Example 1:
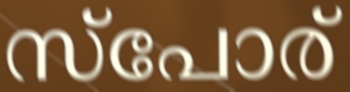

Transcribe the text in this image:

സ്പോര്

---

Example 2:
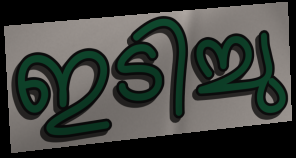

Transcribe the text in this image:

ഇടിച്ചു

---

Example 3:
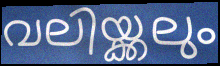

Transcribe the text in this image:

വലിയ്ക്കലും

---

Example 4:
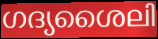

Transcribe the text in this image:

ഗദ്യശൈലി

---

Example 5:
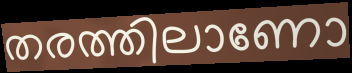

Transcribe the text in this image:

തരത്തിലാണോ